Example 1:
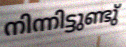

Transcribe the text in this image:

നിന്നിട്ടുണ്ടു്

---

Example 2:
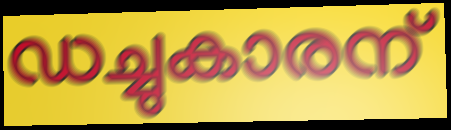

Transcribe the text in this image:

ഡച്ചുകാരന്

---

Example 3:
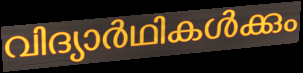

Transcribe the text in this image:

വിദ്യാർഥികൾക്കും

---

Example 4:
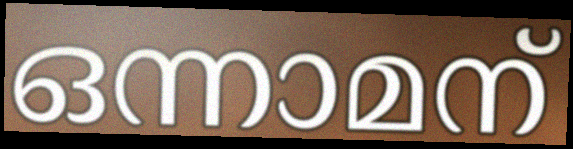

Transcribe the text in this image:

ഒന്നാമന്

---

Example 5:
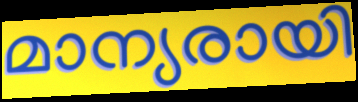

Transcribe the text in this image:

മാന്യരായി